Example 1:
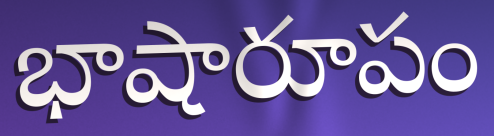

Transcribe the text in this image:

భాషారూపం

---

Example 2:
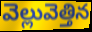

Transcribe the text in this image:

వెల్లువెత్తిన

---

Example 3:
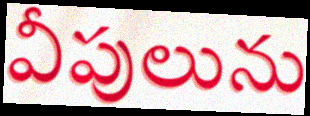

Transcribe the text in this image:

వీపులును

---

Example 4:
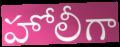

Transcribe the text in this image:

హోలీగా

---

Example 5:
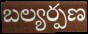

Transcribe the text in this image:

బల్యర్పణ